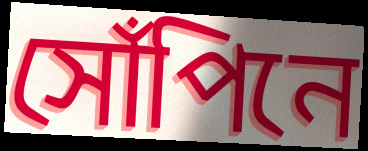
সোঁপিনে